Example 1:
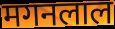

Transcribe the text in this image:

मगनलाल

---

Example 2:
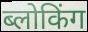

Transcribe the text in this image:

ब्लोकिंग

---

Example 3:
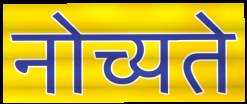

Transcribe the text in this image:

नोच्यते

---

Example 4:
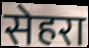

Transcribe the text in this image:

सेहरा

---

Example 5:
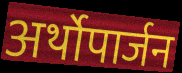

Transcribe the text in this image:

अर्थोपार्जन